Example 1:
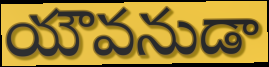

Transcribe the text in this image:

యౌవనుడా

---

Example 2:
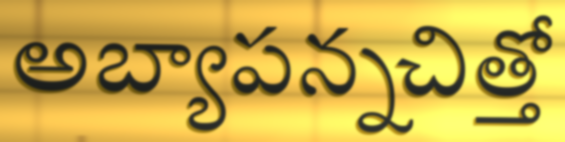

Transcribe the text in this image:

అబ్యాపన్నచిత్తో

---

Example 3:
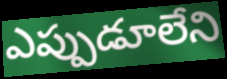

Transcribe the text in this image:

ఎప్పుడూలేని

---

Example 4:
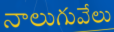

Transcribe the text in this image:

నాలుగువేలు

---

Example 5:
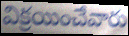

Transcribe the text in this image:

విక్రయించేవారు